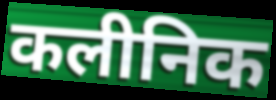
कलीनिक